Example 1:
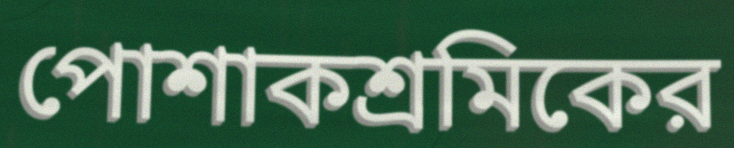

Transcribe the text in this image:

পোশাকশ্রমিকের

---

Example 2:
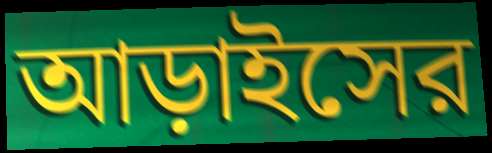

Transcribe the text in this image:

আড়াইসের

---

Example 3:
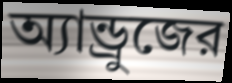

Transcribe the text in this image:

অ্যান্ড্রুজের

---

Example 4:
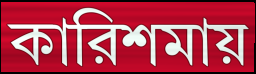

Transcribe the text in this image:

কারিশমায়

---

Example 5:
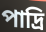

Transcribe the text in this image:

পাদ্রি